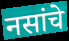
नसांचे